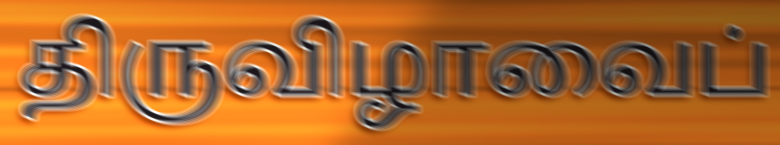
திருவிழாவைப்